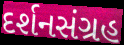
દર્શનસંગ્રહ